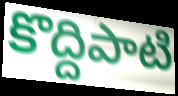
కొద్దిపాటి